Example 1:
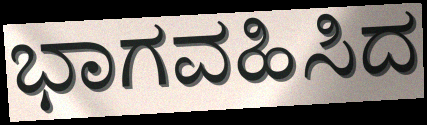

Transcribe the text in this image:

ಭಾಗವಹಿಸಿದ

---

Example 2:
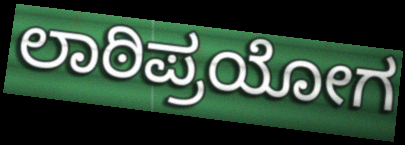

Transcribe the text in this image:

ಲಾಠಿಪ್ರಯೋಗ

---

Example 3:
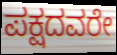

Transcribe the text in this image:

ಪಕ್ಷದವರೇ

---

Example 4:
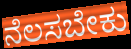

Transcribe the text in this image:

ನೆಲಸಬೇಕು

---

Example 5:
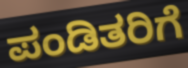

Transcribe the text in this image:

ಪಂಡಿತರಿಗೆ